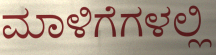
ಮಾಳಿಗೆಗಳಲ್ಲಿ